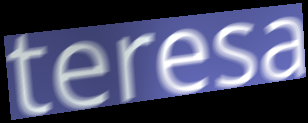
teresa